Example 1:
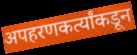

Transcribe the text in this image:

अपहरणकर्त्यांकडून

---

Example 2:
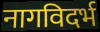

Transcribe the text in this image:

नागविदर्भ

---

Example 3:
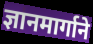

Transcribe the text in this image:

ज्ञानमार्गाने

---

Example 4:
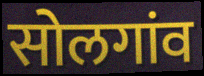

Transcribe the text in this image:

सोलगांव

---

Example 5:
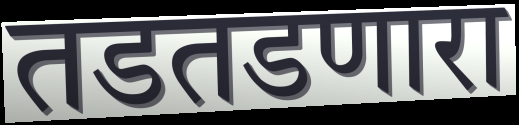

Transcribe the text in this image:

तडतडणारा